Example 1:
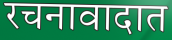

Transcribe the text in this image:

रचनावादात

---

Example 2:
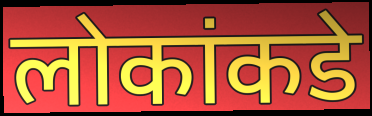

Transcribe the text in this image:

लोकांकडे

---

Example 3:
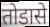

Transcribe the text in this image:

तोडासे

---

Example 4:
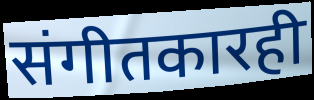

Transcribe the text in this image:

संगीतकारही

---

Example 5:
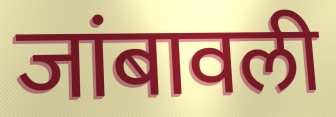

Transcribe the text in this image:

जांबावली